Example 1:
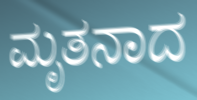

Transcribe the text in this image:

ಮೃತನಾದ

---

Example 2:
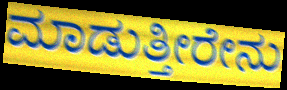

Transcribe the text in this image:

ಮಾಡುತ್ತೀರೇನು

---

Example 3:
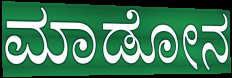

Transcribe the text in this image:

ಮಾಡೋನ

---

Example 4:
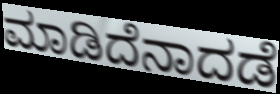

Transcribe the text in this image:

ಮಾಡಿದೆನಾದಡೆ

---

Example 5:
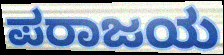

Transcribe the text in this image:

ಪರಾಜಯ